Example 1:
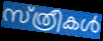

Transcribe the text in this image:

സ്‌ത്രീകൾ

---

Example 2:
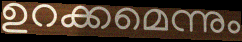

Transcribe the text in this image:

ഉറക്കമെന്നും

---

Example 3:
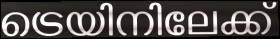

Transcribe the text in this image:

ട്രെയിനിലേക്ക്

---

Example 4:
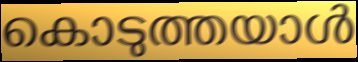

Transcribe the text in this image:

കൊടുത്തയാൾ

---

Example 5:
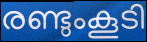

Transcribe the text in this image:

രണ്ടുംകൂടി